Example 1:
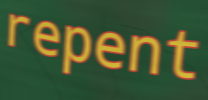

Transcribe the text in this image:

repent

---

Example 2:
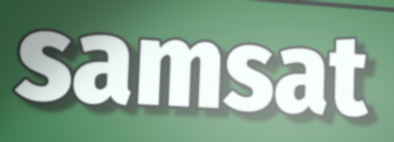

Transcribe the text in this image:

samsat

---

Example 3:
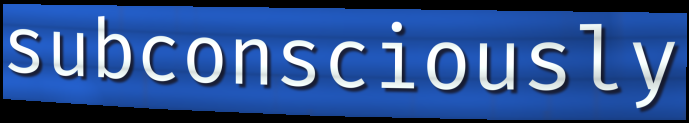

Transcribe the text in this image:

subconsciously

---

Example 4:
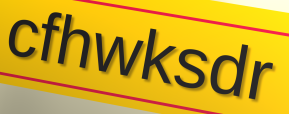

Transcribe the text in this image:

cfhwksdr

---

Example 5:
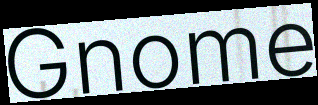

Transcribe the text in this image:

Gnome